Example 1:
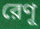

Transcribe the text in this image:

রেণূ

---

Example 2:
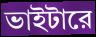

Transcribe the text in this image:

ভাইটারে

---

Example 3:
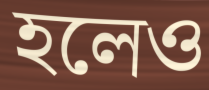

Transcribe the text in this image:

হলেও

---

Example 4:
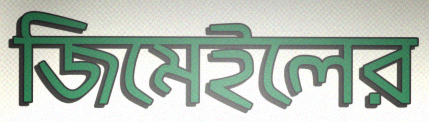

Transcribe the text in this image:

জিমেইলের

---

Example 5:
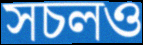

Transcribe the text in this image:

সচলও